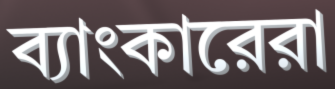
ব্যাংকারেরা